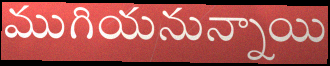
ముగియనున్నాయి